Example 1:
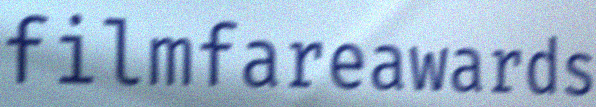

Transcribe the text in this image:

filmfareawards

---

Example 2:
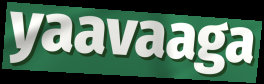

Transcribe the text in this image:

yaavaaga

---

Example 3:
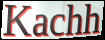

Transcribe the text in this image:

Kachh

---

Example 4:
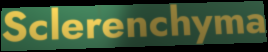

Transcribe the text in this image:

Sclerenchyma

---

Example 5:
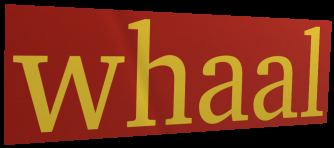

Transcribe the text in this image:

whaal